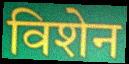
विशेन